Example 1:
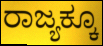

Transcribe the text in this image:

ರಾಜ್ಯಕ್ಕೂ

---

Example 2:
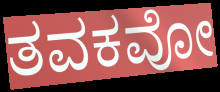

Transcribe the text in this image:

ತವಕವೋ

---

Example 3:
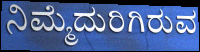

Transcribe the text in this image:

ನಿಮ್ಮೆದುರಿಗಿರುವ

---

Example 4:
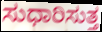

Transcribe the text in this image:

ಸುಧಾರಿಸುತ್ತ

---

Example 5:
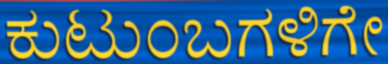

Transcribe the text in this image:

ಕುಟುಂಬಗಳಿಗೇ